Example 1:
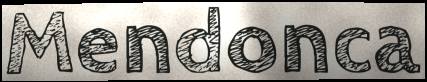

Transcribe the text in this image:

Mendonca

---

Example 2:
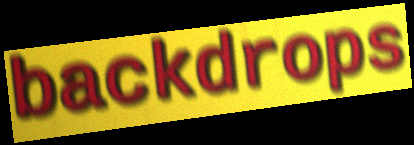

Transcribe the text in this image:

backdrops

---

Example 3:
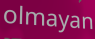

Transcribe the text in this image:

olmayan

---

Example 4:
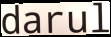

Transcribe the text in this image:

darul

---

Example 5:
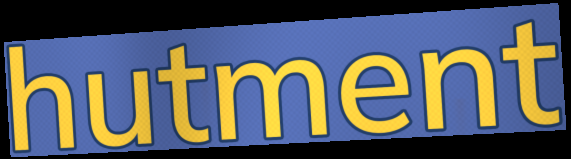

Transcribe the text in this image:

hutment